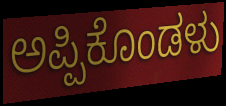
ಅಪ್ಪಿಕೊಂಡಳು